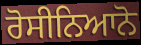
ਰੋਸੀਨਿਆਨੋ